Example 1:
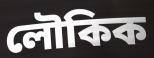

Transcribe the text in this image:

লৌকিক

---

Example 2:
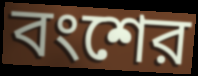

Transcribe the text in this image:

বংশের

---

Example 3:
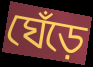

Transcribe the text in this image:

ঘেঁড়ে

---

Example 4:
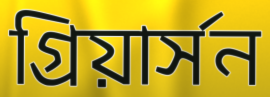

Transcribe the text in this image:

গ্রিয়ার্সন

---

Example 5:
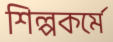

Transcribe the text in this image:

শিল্পকর্মে